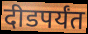
दीडपर्यंत